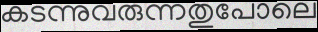
കടന്നുവരുന്നതുപോലെ